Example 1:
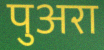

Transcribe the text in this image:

पुअरा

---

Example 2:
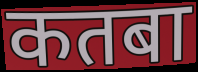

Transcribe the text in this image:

कतबा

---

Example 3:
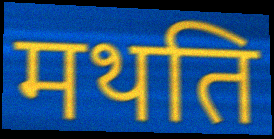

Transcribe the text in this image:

मथति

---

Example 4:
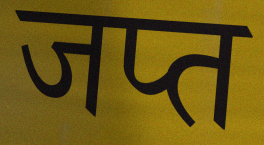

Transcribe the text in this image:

जप्त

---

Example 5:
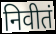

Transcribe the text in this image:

निवीतं